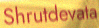
Shrutdevata